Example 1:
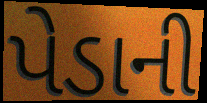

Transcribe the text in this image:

પેડાની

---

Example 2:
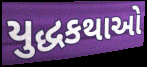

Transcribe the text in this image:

યુદ્ધકથાઓ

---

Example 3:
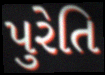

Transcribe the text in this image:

પુરેતિ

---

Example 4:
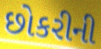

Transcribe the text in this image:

છોકરીની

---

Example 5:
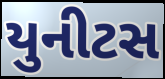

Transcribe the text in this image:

યુનીટસ